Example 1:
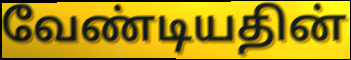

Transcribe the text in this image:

வேண்டியதின்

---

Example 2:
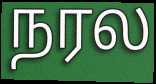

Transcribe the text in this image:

நரல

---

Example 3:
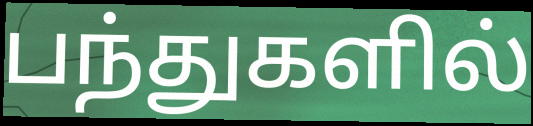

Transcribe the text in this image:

பந்துகளில்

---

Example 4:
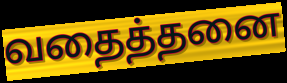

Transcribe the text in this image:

வதைத்தனை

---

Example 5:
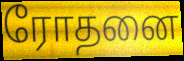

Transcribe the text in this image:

ரோதனை